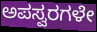
ಅಪಸ್ವರಗಳೇ